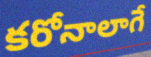
కరోనాలాగే